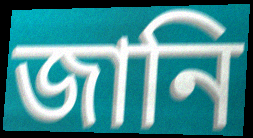
জানি